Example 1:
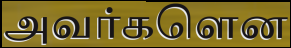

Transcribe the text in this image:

அவர்களென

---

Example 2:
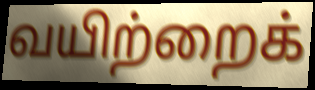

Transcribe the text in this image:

வயிற்றைக்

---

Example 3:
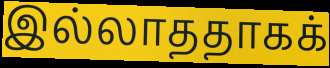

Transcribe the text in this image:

இல்லாததாகக்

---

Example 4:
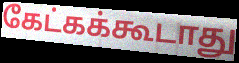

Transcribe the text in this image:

கேட்கக்கூடாது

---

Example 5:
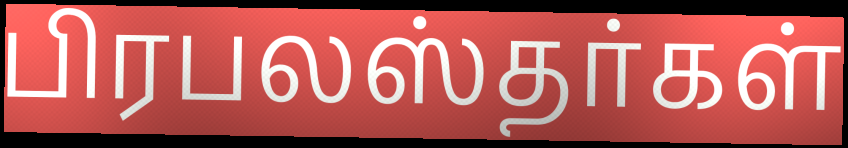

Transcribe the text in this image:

பிரபலஸ்தர்கள்